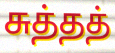
சுத்தத்